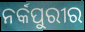
ନର୍କପୁରୀର